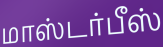
மாஸ்டர்பீஸ்